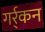
गर्र्कन